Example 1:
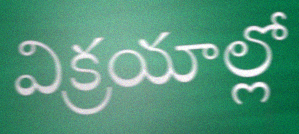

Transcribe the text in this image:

విక్రయాల్లో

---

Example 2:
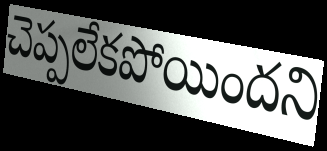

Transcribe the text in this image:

చెప్పలేకపోయిందని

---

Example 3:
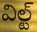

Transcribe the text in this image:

విల్ట్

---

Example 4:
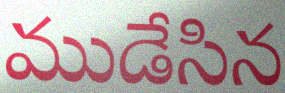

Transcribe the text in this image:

ముడేసిన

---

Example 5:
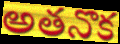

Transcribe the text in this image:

అతనొక